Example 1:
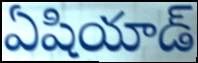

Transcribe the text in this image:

ఏషియాడ్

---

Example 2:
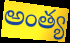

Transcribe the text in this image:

అంత్య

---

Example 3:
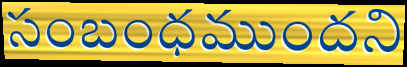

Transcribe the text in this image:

సంబంధముందని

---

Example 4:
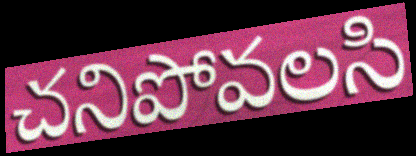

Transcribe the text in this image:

చనిపోవలసి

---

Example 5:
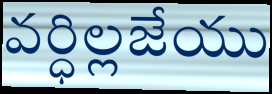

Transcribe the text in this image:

వర్ధిల్లజేయు